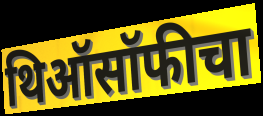
थिऑसॉफीचा